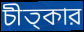
চীত্কার